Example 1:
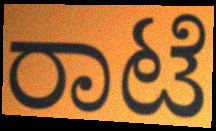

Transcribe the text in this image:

ರಾಟೆ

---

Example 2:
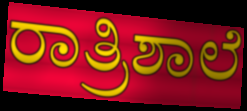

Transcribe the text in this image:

ರಾತ್ರಿಶಾಲೆ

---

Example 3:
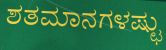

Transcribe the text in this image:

ಶತಮಾನಗಳಷ್ಟು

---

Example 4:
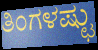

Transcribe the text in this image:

ತಿಂಗಳಷ್ಟು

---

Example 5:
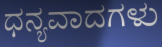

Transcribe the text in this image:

ಧನ್ಯವಾದಗಳು